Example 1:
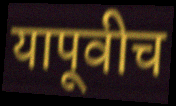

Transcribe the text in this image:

यापूवीच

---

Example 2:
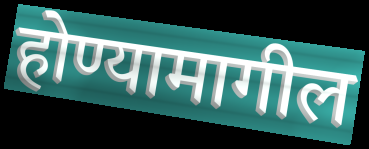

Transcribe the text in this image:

होण्यामागील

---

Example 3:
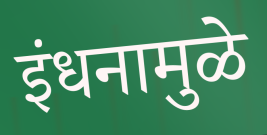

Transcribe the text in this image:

इंधनामुळे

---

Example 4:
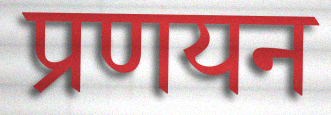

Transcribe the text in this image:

प्रणयन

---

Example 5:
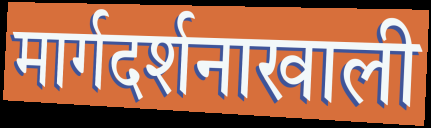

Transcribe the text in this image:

मार्गदर्शनाखाली